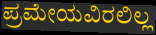
ಪ್ರಮೇಯವಿರಲಿಲ್ಲ